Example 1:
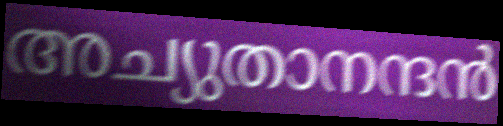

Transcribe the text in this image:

അച്യുതാനന്ദൻ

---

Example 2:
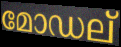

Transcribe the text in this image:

മോഡല്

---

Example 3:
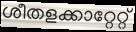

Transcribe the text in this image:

ശീതളക്കാറ്റേറ്റ്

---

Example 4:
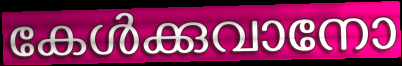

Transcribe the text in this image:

കേൾക്കുവാനോ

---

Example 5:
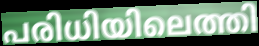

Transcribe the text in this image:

പരിധിയിലെത്തി